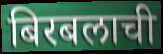
बिरबलाची